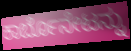
ಕಾರ್ಬೊನೇಟನ್ನು